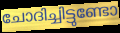
ചോദിച്ചിട്ടുണ്ടോ